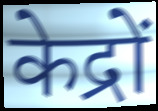
केद्रों